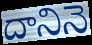
దానినె